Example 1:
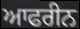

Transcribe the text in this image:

ਆਫਰੀਨ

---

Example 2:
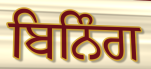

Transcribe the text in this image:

ਬਿਨਿੰਗ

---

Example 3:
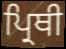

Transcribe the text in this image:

ਪ੍ਰਿਥੀ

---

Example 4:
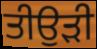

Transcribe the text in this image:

ਤੀਉੜੀ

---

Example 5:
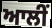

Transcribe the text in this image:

ਆਲੀਂ